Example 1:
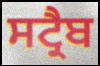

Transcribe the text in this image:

ਸਟ੍ਰੈਬ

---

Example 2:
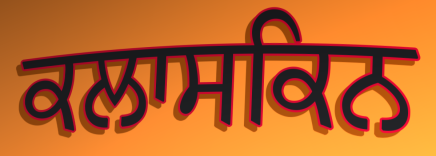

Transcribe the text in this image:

ਕਲਾਸਕਿਨ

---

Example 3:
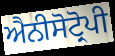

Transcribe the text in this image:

ਐਨੀਸੋਟ੍ਰੋਪੀ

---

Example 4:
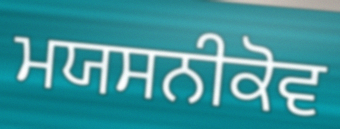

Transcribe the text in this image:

ਮਯਸਨੀਕੋਵ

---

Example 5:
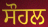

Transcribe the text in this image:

ਸੌਹਲ